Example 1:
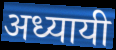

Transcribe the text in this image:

अध्यायी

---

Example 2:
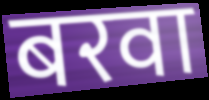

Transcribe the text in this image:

बरवा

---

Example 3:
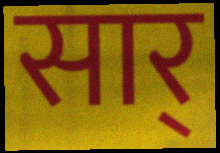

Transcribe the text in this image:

सार्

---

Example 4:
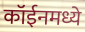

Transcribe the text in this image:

कॉईनमध्ये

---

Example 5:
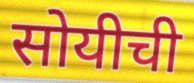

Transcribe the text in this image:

सोयीची